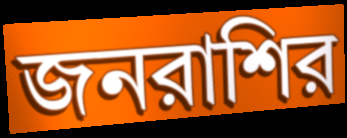
জনরাশির